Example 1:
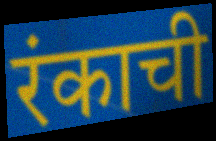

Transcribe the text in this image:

रंकाची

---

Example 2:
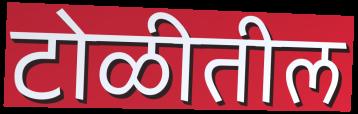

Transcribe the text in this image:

टोळीतील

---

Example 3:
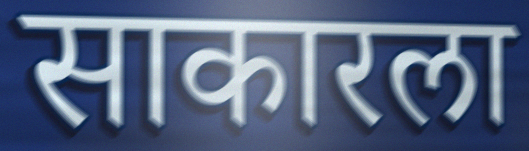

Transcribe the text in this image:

साकारला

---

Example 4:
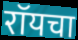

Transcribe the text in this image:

रॉयचा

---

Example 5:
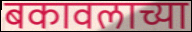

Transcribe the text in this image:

बकावलाच्या